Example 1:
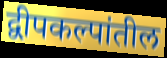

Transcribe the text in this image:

द्वीपकल्पांतील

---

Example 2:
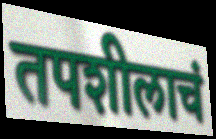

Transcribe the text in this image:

तपशीलाचं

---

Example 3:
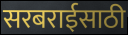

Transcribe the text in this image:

सरबराईसाठी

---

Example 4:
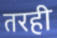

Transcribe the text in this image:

तरही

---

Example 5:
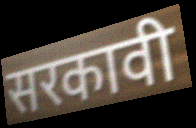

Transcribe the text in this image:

सरकावी